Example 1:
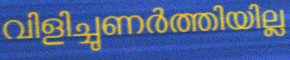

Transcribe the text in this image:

വിളിച്ചുണർത്തിയില്ല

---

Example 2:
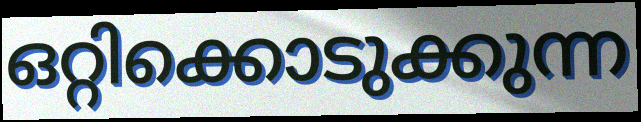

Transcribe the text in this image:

ഒറ്റിക്കൊടുക്കുന്ന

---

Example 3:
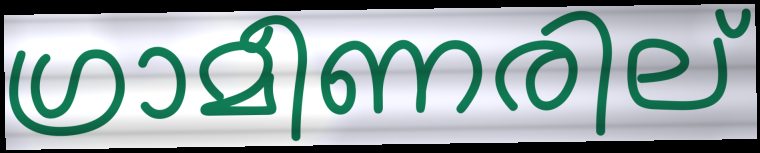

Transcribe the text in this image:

ഗ്രാമീണരില്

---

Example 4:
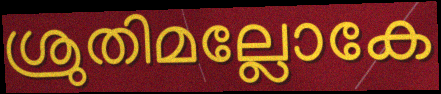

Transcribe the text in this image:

ശ്രുതിമല്ലോകേ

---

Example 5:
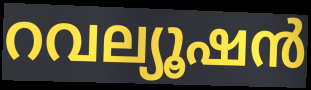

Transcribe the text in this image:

റവല്യൂഷൻ